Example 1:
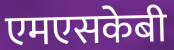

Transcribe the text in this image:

एमएसकेबी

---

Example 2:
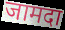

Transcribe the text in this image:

जामदा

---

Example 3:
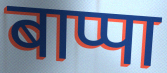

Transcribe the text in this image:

बाप्पा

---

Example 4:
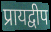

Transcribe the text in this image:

प्रायद्वीप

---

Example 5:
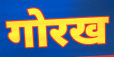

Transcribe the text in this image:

गोरख